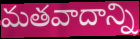
మతవాదాన్ని